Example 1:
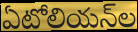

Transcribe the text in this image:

ఏటోలియన్‌ల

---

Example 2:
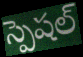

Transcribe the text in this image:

స్పెషల్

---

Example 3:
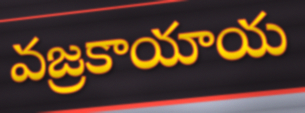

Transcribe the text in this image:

వజ్రకాయాయ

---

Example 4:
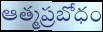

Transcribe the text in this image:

ఆత్మప్రబోధం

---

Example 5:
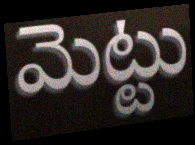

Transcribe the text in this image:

మెట్టు